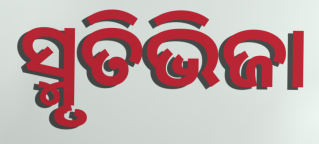
ସ୍ମୃତିଭିଜା